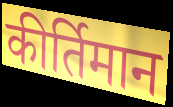
कीर्तिमान